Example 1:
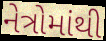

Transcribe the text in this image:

નેત્રોમાંથી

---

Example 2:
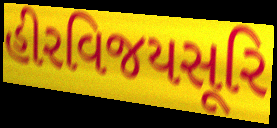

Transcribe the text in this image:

હીરવિજયસૂરિ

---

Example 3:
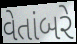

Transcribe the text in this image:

વેતાંબરે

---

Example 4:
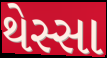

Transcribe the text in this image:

થેસ્સા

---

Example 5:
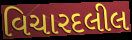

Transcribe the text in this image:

વિચારદલીલ